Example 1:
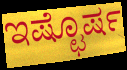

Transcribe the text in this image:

ಇಷ್ಟೊರ್ಷ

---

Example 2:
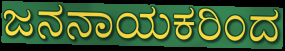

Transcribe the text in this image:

ಜನನಾಯಕರಿಂದ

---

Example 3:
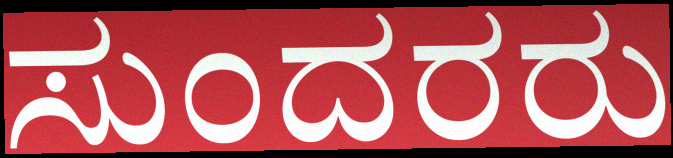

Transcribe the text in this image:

ಸುಂದರರು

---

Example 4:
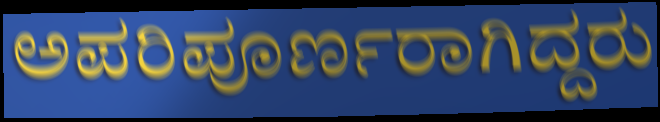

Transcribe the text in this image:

ಅಪರಿಪೂರ್ಣರಾಗಿದ್ದರು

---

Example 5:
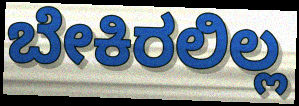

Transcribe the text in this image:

ಬೇಕಿರಲಿಲ್ಲ